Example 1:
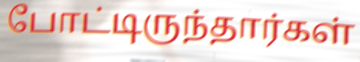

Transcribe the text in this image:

போட்டிருந்தார்கள்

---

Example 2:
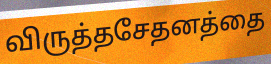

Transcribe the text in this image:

விருத்தசேதனத்தை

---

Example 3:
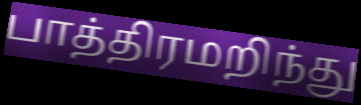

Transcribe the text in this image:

பாத்திரமறிந்து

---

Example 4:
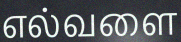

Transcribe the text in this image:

எல்வளை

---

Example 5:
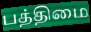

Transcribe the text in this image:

பத்திமை